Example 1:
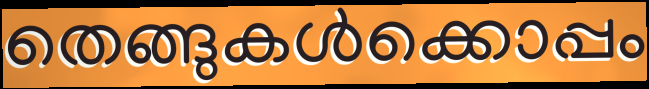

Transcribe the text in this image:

തെങ്ങുകൾക്കൊപ്പം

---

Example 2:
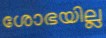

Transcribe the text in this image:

ശോഭയില്ല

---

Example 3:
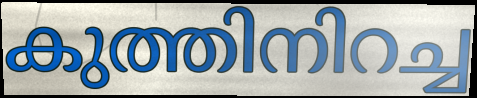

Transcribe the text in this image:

കുത്തിനിറച്ച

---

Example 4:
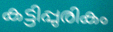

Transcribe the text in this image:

കട്ടിപ്പുരികം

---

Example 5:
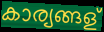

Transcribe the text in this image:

കാര്യങ്ങള്